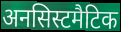
अनसिस्टमैटिक